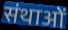
संथाओं